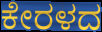
ಕೇರಳದ